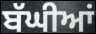
ਬੱਘੀਆਂ